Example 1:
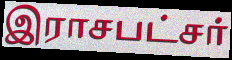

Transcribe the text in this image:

இராசபட்சர்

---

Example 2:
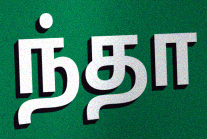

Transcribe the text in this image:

ந்தா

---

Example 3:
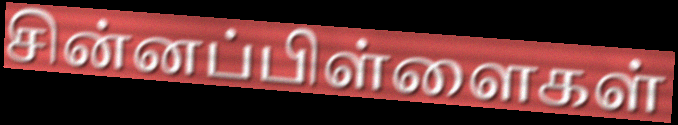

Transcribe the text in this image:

சின்னப்பிள்ளைகள்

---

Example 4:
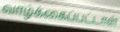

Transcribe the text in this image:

வாழ்க்கைப்பட்டாள்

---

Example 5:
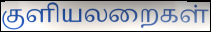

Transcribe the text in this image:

குளியலறைகள்